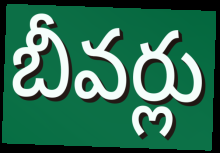
బీవర్లు